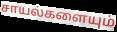
சாயல்களையும்